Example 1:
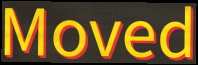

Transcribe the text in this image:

Moved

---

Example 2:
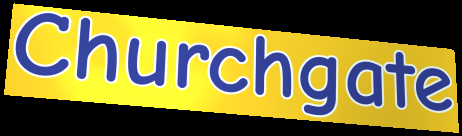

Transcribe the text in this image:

Churchgate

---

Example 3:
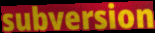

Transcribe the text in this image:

subversion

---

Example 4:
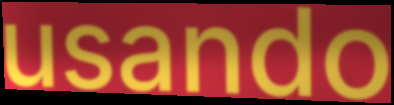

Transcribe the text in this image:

usando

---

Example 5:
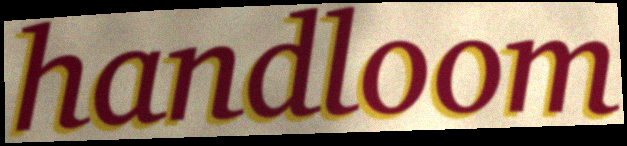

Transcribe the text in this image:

handloom